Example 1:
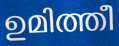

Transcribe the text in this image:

ഉമിത്തീ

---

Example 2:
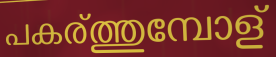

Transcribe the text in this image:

പകര്ത്തുമ്പോള്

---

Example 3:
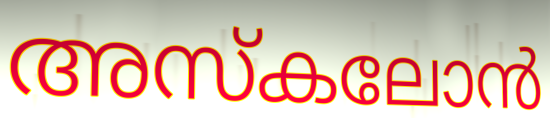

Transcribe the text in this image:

അസ്കലോൻ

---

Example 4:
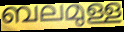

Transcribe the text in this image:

ബലമുള്ള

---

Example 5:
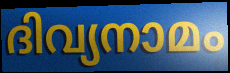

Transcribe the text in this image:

ദിവ്യനാമം